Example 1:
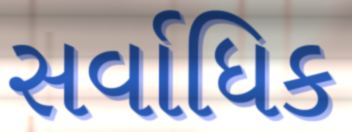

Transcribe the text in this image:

સર્વાધિક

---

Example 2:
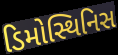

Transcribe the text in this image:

ડિમોસ્થિનિસ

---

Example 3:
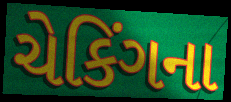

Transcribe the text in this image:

ચેકિંગના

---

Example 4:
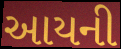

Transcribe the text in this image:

આયની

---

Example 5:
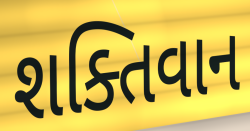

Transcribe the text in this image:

શક્તિવાન